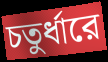
চতুর্ধারে